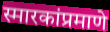
स्मारकांप्रमाणे